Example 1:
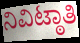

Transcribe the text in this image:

ನಿವಿಟ್ಠಾತಿ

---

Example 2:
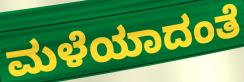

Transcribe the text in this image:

ಮಳೆಯಾದಂತೆ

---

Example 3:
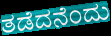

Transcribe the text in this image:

ತಡೆದನೆಂದು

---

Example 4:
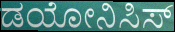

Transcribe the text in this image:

ಡಯೋನಿಸಿಸ್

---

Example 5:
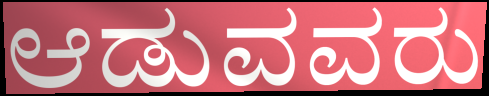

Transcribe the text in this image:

ಆಡುವವರು